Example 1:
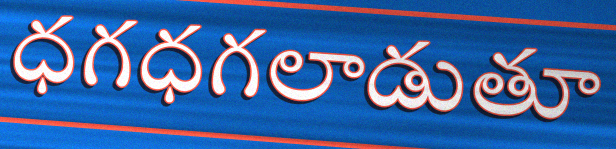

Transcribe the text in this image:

ధగధగలాడుతూ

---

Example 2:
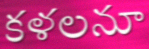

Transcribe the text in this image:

కళలనూ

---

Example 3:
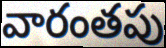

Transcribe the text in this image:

వారంతపు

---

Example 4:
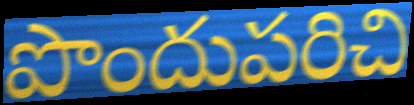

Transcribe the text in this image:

పొందుపరిచి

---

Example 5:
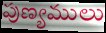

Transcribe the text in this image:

పుణ్యములు